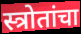
स्त्रोतांचा